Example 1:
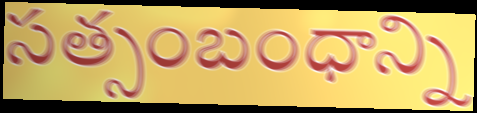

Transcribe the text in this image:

సత్సంబంధాన్ని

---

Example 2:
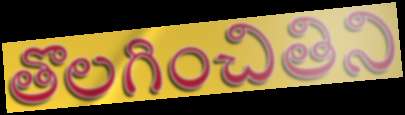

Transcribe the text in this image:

తొలగించితిని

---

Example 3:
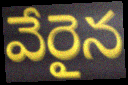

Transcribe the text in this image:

వేరైన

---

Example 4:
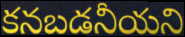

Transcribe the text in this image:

కనబడనీయని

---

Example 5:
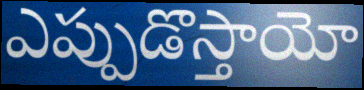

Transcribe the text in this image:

ఎప్పుడొస్తాయో